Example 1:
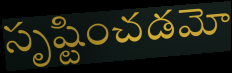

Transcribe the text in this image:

సృష్టించడమో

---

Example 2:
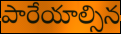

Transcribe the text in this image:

పారేయాల్సిన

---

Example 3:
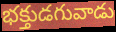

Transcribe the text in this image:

భక్తుడగువాడు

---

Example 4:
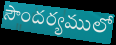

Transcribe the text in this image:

సౌందర్యములో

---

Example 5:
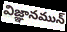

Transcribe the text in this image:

విజ్ఞానమున్